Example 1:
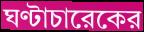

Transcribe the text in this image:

ঘণ্টাচারেকের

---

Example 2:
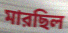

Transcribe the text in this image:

মারছিল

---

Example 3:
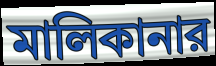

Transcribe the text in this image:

মালিকানার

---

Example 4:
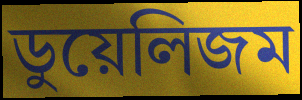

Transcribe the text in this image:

ডুয়েলিজম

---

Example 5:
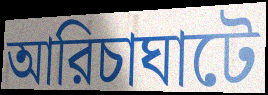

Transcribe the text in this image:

আরিচাঘাটে